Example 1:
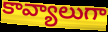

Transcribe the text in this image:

కావ్యాలుగా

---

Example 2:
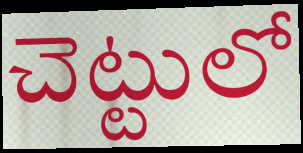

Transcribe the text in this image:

చెట్టులో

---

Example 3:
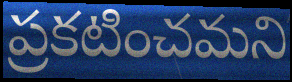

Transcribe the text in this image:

ప్రకటించమని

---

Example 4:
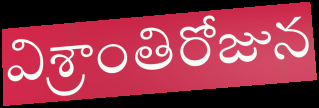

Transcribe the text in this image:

విశ్రాంతిరోజున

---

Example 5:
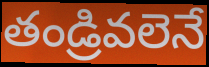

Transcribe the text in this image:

తండ్రివలెనే